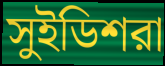
সুইডিশরা